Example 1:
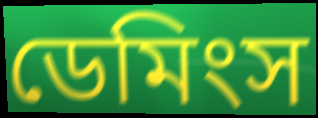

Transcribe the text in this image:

ডেমিংস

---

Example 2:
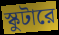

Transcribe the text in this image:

স্কুটারে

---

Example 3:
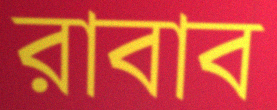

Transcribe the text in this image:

রাবাব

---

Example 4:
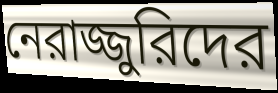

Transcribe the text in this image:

নেরাজ্জুরিদের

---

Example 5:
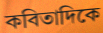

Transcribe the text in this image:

কবিতাদিকে